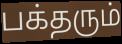
பக்தரும்